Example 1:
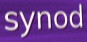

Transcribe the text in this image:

synod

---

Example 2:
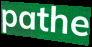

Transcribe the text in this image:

pathe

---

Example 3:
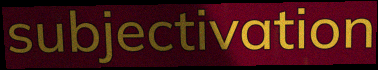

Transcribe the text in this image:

subjectivation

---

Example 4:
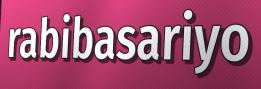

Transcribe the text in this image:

rabibasariyo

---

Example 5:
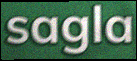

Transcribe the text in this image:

sagla